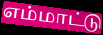
எம்மாட்டு